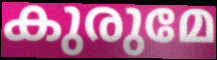
കുരുമേ